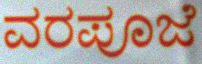
ವರಪೂಜೆ